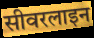
सीवरलाइन